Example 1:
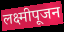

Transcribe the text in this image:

लक्ष्मीपूजन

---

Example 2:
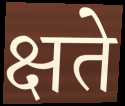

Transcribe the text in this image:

क्षते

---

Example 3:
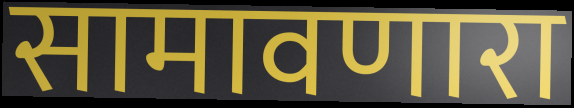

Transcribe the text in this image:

सामावणारा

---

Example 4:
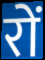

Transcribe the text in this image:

रों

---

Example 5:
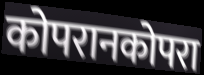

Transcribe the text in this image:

कोपरानकोपरा